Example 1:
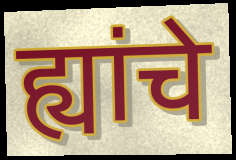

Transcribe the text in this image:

ह्यांचे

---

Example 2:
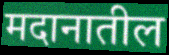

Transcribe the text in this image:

मदानातील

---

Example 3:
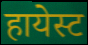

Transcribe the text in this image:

हायेस्ट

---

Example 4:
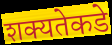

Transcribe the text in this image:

शक्यतेकडे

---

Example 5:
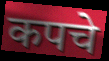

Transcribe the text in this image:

कपचे